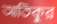
আতিকুর